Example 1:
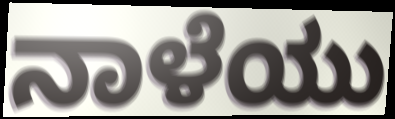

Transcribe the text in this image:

ನಾಳೆಯು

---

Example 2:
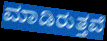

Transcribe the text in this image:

ಮಾಡಿರುತ್ತವೆ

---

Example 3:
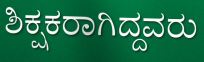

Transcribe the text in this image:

ಶಿಕ್ಷಕರಾಗಿದ್ದವರು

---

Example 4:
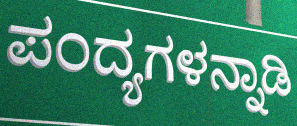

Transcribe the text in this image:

ಪಂದ್ಯಗಳನ್ನಾಡಿ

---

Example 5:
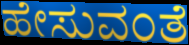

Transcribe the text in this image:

ಹೇಸುವಂತೆ